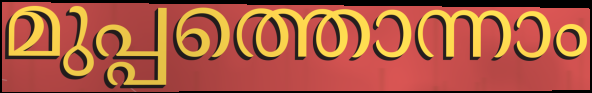
മുപ്പത്തൊന്നാം